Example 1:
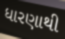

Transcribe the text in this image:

ધારણાથી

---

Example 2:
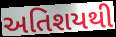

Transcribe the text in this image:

અતિશયથી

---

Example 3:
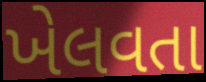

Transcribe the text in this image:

ખેલવતા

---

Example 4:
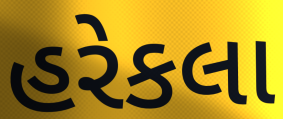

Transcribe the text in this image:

હરેકલા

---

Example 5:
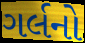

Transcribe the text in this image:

ગર્લનો